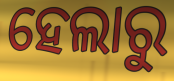
ହେଲାରୁ